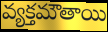
వ్యక్తమౌతాయి